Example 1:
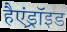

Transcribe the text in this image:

हैएंड्रॉइड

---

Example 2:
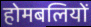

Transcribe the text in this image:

होमबलियों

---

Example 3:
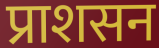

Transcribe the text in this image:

प्राशसन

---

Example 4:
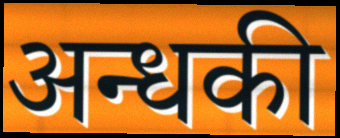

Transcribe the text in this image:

अन्धकी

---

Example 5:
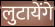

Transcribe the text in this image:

लुटायेंगे